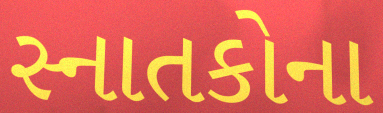
સ્નાતકોના